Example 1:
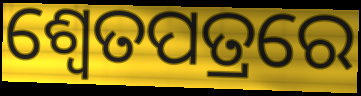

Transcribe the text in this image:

ଶ୍ଵେତପତ୍ରରେ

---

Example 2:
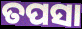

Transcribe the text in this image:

ତପସା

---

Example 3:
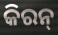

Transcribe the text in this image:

କିରନ୍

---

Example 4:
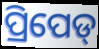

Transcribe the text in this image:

ପ୍ରିପେଡ୍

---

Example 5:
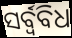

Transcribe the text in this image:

ସର୍ବ୍ବବିଧ